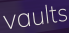
vaults